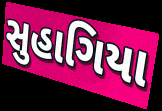
સુહાગિયા